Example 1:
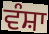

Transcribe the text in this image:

ਵੰਸ਼ਾ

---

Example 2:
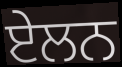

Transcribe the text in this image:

ਏਲਨ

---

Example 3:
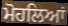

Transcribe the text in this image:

ਮੋਹਲਿਆਂ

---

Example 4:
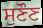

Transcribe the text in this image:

ਸੁਣੌਣ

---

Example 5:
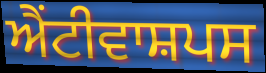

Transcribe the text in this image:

ਐਂਟੀਵਾਸ਼ਪਸ